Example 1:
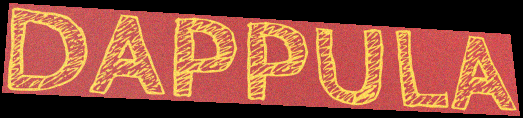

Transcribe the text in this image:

DAPPULA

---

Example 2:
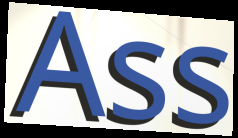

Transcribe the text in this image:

Ass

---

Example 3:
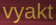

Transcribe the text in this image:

vyakt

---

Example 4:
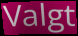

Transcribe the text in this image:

Valgt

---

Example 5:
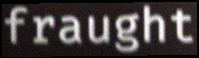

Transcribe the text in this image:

fraught